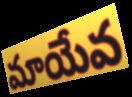
మాయేవ